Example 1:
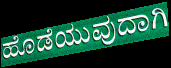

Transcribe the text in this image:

ಹೊಡೆಯುವುದಾಗಿ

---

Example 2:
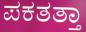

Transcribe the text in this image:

ಪಕತತ್ತಾ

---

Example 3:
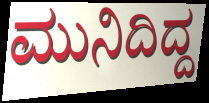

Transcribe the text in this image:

ಮುನಿದಿದ್ದ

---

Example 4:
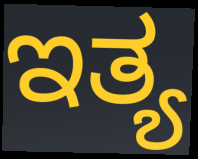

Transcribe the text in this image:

ಇತ್ಯ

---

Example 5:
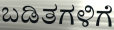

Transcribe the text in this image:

ಬಡಿತಗಳಿಗೆ